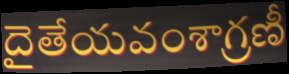
దైతేయవంశాగ్రణీ